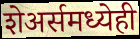
शेअर्समध्येही